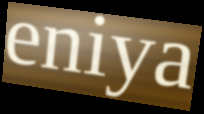
eniya